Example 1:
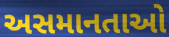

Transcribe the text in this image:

અસમાનતાઓ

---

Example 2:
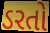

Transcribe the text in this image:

ડરતો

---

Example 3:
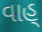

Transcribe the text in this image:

વાહ્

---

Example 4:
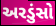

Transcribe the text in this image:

અરડુંસો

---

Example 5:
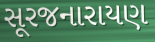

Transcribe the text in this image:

સૂરજનારાયણ